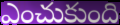
ఎంచుకుంది